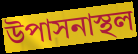
উপাসনাস্থল